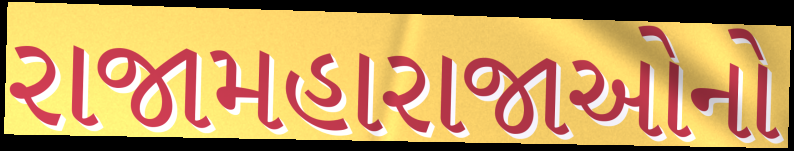
રાજામહારાજાઓનો